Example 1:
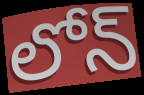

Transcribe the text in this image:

లోన్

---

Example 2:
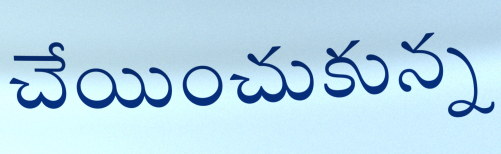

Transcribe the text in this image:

చేయించుకున్న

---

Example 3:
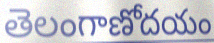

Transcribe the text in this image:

తెలంగాణోదయం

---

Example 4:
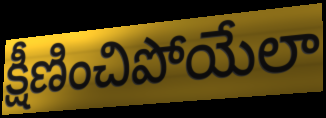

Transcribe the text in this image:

క్షీణించిపోయేలా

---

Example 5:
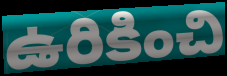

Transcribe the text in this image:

ఉరికించి